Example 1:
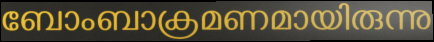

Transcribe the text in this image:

ബോംബാക്രമണമായിരുന്നു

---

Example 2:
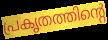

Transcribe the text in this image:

പ്രകൃതത്തിന്റെ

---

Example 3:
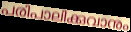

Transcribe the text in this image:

പരിപാലിക്കുവാനും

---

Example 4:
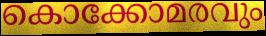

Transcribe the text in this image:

കൊക്കോമരവും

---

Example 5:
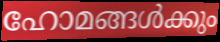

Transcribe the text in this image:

ഹോമങ്ങൾക്കും